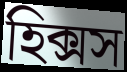
হিক্সস